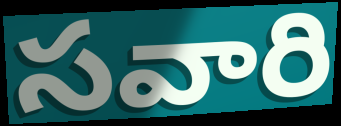
సవారి